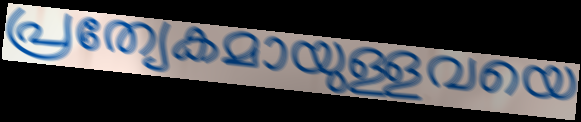
പ്രത്യേകമായുള്ളവയെ